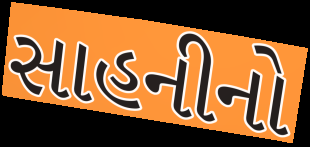
સાહનીનો